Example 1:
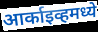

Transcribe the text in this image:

आर्काइव्हमध्ये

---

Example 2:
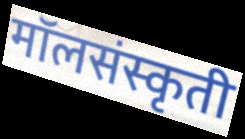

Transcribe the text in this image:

मॉलसंस्कृती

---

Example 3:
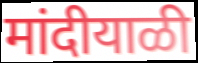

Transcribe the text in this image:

मांदीयाळी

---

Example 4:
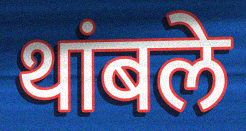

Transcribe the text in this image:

थांबले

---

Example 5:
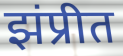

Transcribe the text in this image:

झंप्रीत